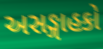
અસઙ્ગાહકો